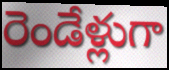
రెండేళ్లుగా